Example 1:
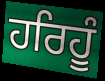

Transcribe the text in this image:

ਹਰਿਹੂੰ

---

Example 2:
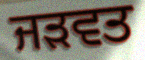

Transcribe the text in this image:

ਜੜਵਤ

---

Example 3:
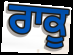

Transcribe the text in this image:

ਰਾਕੂ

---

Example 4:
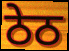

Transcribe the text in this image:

ਠੇਠ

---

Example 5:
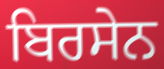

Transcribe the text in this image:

ਬਿਰਸੇਨ